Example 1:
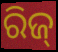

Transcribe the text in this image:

ରିଜ୍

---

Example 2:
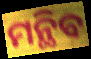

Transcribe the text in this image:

ମନ୍ଥିବ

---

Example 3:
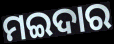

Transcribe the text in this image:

ମଇଦାର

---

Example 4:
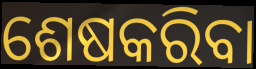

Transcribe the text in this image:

ଶେଷକରିବା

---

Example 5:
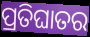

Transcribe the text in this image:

ପ୍ରତିଘାତର